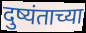
दुष्यंताच्या